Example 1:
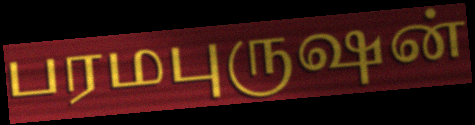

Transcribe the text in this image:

பரமபுருஷன்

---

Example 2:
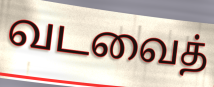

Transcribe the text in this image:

வடவைத்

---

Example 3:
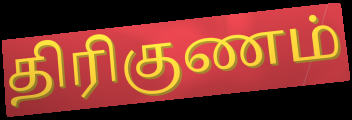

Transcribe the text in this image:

திரிகுணம்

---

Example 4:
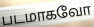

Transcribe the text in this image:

படமாகவோ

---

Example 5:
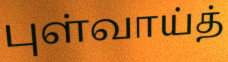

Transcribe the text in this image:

புள்வாய்த்